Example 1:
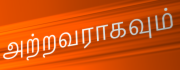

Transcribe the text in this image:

அற்றவராகவும்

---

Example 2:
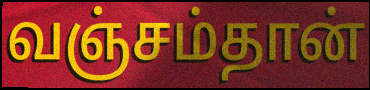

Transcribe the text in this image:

வஞ்சம்தான்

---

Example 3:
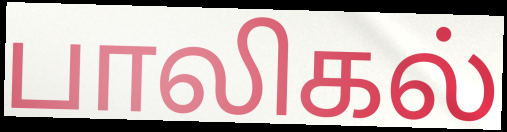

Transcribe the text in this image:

பாலிகல்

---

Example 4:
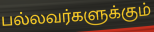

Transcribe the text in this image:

பல்லவர்களுக்கும்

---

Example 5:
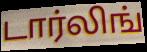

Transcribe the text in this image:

டார்லிங்